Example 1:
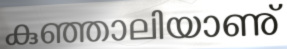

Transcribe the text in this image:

കുഞ്ഞാലിയാണു്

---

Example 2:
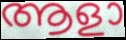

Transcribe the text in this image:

ആളാ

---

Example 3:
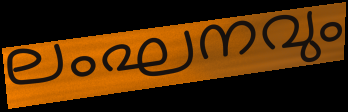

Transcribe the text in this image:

ലംഘനവും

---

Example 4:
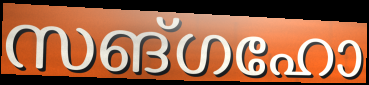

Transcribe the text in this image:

സങ്ഗഹോ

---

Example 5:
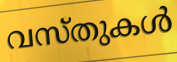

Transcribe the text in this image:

വസ്തുകൾ